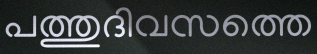
പത്തുദിവസത്തെ